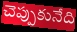
చెప్పుకునేది